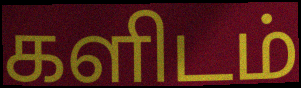
களிடம்